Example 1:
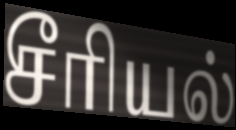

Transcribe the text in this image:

சீரியல்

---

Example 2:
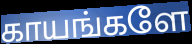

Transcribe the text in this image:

காயங்களே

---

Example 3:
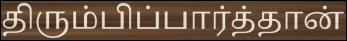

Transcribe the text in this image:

திரும்பிப்பார்த்தான்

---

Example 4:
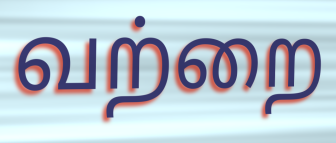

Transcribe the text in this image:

வற்றை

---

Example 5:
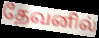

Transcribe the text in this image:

தேவனில்